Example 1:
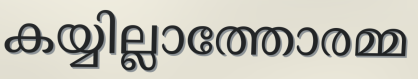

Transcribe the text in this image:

കയ്യില്ലാത്തോരമ്മ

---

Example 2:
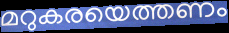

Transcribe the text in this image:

മറുകരയെത്തണം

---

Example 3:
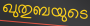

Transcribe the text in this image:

ഖുതുബയുടെ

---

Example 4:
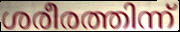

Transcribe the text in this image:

ശരീരത്തിന്ന്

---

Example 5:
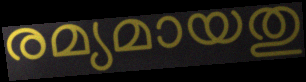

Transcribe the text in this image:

രമ്യമായതു